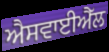
ਐਸਵਾਈਐੱਲ